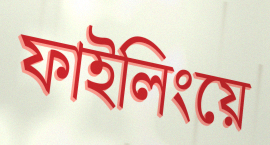
ফাইলিংয়ে